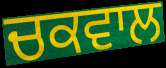
ਚਕਵਾਲ